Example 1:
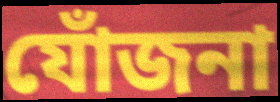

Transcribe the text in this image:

যোঁজনা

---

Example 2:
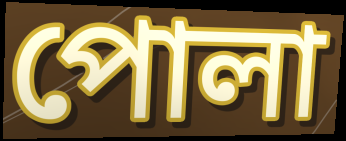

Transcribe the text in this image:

পোলা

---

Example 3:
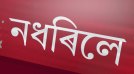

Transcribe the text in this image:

নধৰিলে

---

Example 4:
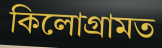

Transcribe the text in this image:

কিলোগ্ৰামত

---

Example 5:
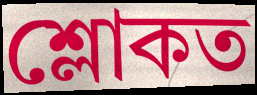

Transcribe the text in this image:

শ্লোকত